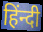
हिंन्दी